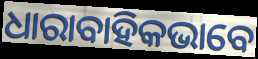
ଧାରାବାହିକଭାବେ